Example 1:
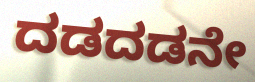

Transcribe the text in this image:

ದಡದಡನೇ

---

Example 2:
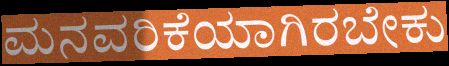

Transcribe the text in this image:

ಮನವರಿಕೆಯಾಗಿರಬೇಕು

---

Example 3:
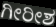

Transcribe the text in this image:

ಗೀರೀಶ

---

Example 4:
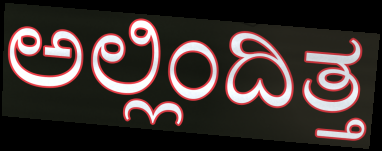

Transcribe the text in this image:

ಅಲ್ಲಿಂದಿತ್ತ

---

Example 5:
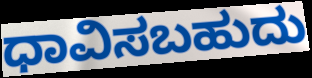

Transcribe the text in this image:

ಧಾವಿಸಬಹುದು